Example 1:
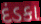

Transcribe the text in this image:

દંડકા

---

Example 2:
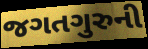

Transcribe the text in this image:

જગતગુરુની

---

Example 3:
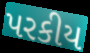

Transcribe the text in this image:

પરકીય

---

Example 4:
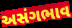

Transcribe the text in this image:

અસંગભાવ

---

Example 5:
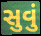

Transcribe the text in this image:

સુવું